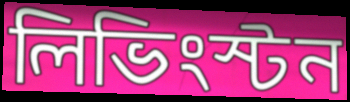
লিভিংস্টন